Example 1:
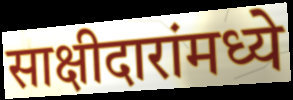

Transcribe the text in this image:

साक्षीदारांमध्ये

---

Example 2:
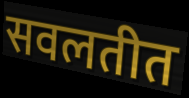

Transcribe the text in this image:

सवलतीत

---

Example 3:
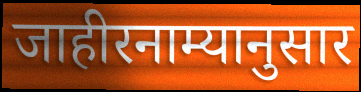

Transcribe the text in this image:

जाहीरनाम्यानुसार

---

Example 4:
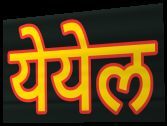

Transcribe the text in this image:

येयेल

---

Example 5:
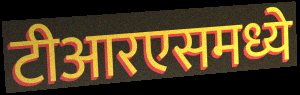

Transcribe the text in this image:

टीआरएसमध्ये